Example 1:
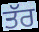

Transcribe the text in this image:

ਤੱਰ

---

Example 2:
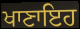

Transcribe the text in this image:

ਖਾਣਾਇਹ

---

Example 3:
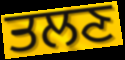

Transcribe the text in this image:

ਤਲਣ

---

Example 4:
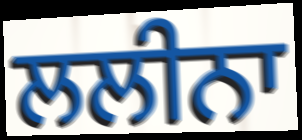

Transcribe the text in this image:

ਲਲੀਨਾ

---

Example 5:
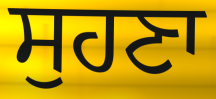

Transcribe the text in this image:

ਸੁਹਣਾ